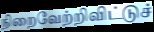
நிறைவேற்றிவிட்டுச்